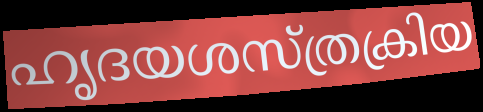
ഹൃദയശസ്ത്രക്രിയ